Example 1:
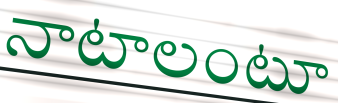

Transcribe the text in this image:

నాటాలంటూ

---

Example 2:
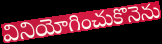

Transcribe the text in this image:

వినియోగించుకొనెను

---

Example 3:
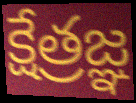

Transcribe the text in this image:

క్షేత్రజ్ఞ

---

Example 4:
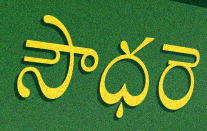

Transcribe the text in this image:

సౌధరె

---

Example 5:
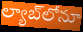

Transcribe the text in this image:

ల్యాబ్‌లోనూ